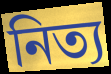
নিত্য